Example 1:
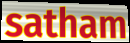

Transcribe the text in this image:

satham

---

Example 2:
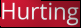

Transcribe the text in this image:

Hurting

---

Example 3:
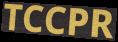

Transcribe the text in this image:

TCCPR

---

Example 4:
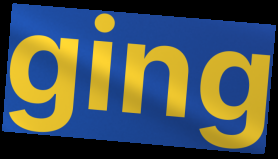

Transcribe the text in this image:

ging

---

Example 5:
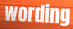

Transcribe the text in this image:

wording